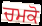
ਚਮਕੋ